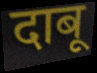
दाबू